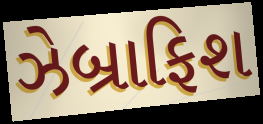
ઝેબ્રાફિશ